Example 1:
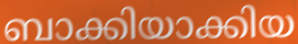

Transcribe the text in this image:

ബാക്കിയാക്കിയ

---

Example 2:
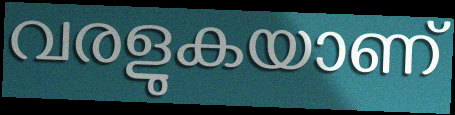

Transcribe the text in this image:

വരളുകയാണ്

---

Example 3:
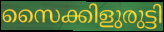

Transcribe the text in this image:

സൈക്കിളുരുട്ടി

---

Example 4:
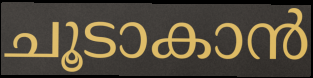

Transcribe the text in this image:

ചൂടാകാൻ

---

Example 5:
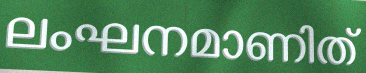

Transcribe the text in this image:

ലംഘനമാണിത്